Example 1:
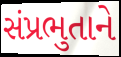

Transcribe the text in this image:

સંપ્રભુતાને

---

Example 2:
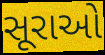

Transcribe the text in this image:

સૂરાઓ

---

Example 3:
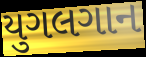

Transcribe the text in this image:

યુગલગાન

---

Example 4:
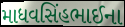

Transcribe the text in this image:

માધવસિંહભાઈના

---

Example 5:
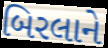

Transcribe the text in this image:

બિરલાને